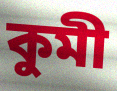
কুমী